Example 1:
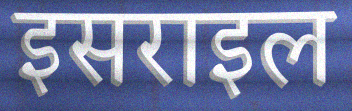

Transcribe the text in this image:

इसराइल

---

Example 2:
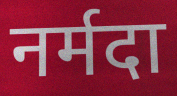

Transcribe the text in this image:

नर्मदा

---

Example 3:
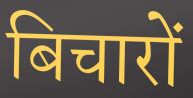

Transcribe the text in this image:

बिचारों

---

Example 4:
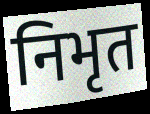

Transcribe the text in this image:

निभृत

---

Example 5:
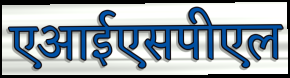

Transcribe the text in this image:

एआईएसपीएल